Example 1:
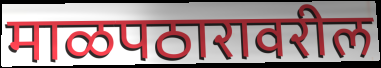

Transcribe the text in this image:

माळपठारावरील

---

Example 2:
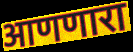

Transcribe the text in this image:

आणणारा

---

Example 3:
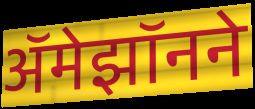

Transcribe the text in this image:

ॲमेझॉनने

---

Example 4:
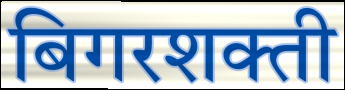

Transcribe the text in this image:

बिगरशक्ती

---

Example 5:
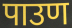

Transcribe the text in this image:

पाउण